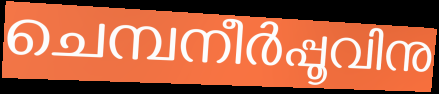
ചെമ്പനീർപ്പൂവിനു